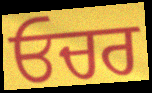
ਓਚਰ